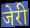
जेरी